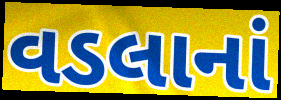
વડલાનાં